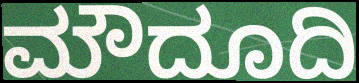
ಮೌದೂದಿ